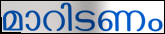
മാറിടണം